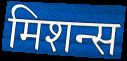
मिशन्स